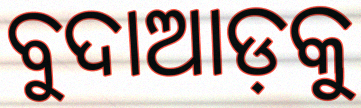
ବୁଦାଆଡ଼କୁ